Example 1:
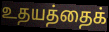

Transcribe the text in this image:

உதயத்தைக்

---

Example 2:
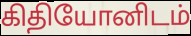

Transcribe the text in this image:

கிதியோனிடம்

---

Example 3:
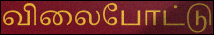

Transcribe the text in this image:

விலைபோட்டு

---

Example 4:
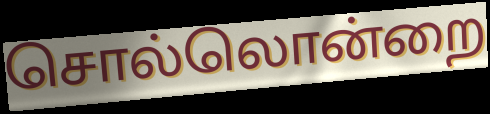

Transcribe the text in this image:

சொல்லொன்றை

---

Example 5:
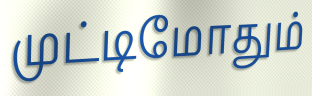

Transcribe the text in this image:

முட்டிமோதும்